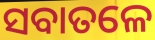
ସବାତଳେ